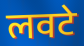
लवटे